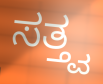
ಸತ್ತ್ವ